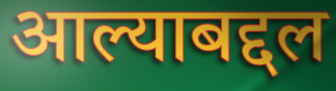
आल्याबद्दल